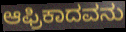
ಆಫ್ರಿಕಾದವನು